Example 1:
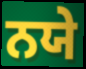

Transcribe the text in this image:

ਨਯੇ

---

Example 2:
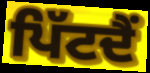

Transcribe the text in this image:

ਪਿੱਟਦੈਂ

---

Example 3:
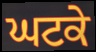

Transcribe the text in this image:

ਘਟਕੇ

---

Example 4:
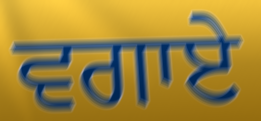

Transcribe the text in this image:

ਵਗਾਏ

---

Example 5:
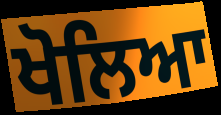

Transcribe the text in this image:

ਖੋਲਿਆ